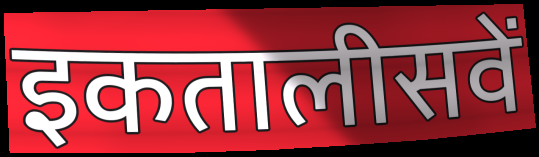
इकतालीसवें